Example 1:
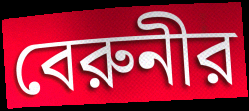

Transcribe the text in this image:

বেরুনীর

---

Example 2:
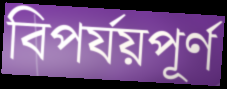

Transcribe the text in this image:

বিপর্যয়পূর্ণ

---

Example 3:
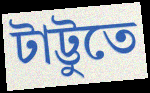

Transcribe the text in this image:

টাট্টুতে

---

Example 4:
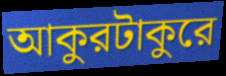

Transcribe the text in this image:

আকুরটাকুরে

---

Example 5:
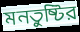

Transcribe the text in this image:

মনতুষ্টির